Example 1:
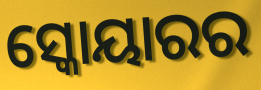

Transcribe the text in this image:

ସ୍କୋୟାରର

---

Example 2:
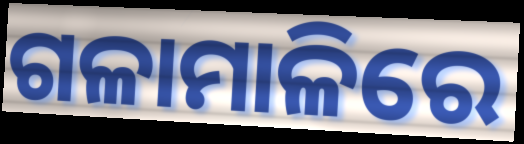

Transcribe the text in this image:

ଗଳାମାଳିରେ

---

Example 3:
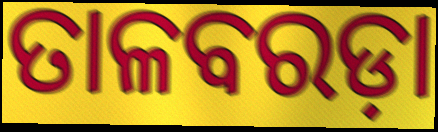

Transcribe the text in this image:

ତାଳବରଡ଼ା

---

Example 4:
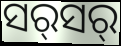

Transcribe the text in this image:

ସର୍‍ସର୍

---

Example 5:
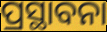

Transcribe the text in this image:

ପ୍ରସ୍ଥାବନା